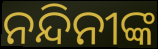
ନନ୍ଦିନୀଙ୍କ